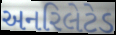
અનરિલેટેડ